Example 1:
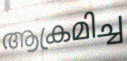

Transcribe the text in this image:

ആക്രമിച്ച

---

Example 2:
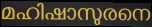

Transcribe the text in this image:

മഹിഷാസുരനെ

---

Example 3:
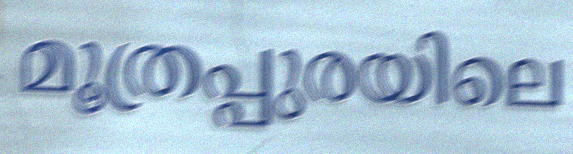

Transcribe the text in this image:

മൂത്രപ്പുരയിലെ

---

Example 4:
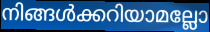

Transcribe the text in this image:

നിങ്ങൾക്കറിയാമല്ലോ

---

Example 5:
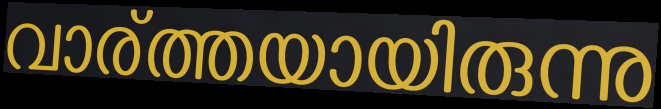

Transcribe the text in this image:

വാര്ത്തയായിരുന്നു